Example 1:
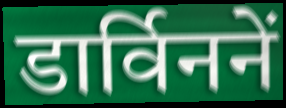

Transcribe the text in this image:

डार्विननें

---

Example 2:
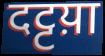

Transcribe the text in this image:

दट्टय़ा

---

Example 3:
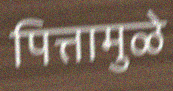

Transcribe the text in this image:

पित्तामुळे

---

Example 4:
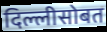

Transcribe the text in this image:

दिल्लीसोबत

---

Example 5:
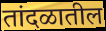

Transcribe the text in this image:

तांदळातील